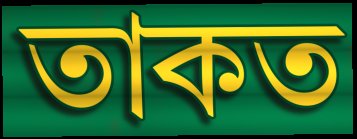
তাকত